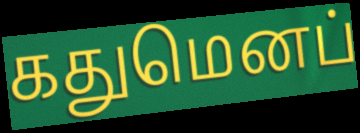
கதுமெனப்